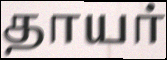
தாயர்